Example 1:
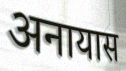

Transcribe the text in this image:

अनायास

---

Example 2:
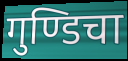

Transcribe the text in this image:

गुण्डिचा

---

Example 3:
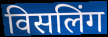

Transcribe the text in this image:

विसलिंग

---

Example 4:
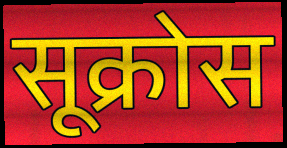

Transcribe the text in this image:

सूक्रोस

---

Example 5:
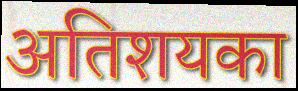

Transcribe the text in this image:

अतिशयका